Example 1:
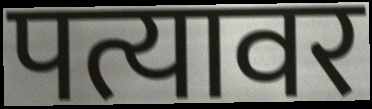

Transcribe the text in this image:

पत्यावर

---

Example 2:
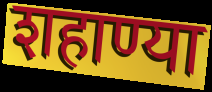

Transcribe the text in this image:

शहाण्या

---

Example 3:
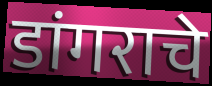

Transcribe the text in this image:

डांगराचे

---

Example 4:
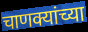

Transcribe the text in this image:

चाणक्यांच्या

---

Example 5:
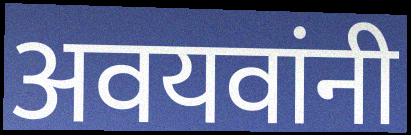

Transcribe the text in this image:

अवयवांनी